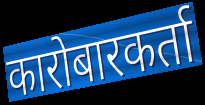
कारोबारकर्ता